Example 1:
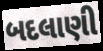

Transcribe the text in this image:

બદલાણી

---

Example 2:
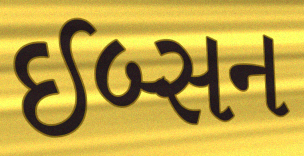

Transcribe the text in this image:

ઈબ્સન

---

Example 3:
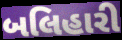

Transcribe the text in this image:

બલિહારી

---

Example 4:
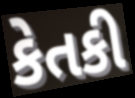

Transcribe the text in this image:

કેતકી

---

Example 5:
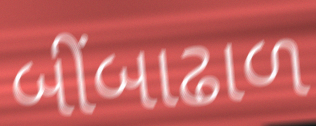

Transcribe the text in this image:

બીંબાઢાળ